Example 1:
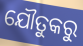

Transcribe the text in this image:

ଯୌତୁକରୁ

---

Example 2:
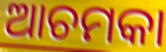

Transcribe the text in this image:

ଆଚମକା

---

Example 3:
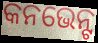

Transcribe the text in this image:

କନଭେନ୍ଟ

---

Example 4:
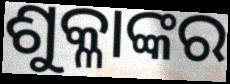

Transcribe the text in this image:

ଶୁକ୍ଳାଙ୍କର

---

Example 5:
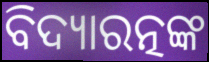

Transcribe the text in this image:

ବିଦ୍ୟାରତ୍ନଙ୍କ